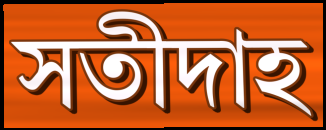
সতীদাহ